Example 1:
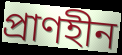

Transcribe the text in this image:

প্রাণহীন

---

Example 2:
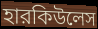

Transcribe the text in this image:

হারকিউলেস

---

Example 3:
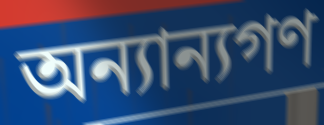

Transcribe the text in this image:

অন্যান্যগণ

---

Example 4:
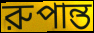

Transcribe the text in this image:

রুপান্ত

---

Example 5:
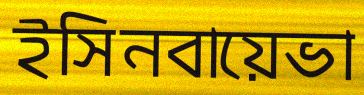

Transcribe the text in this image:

ইসিনবায়েভা